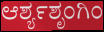
ಆರ್ಶ್ಯಶೃಂಗಿಂ